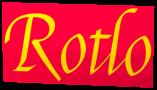
Rotlo